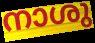
നാശു